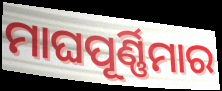
ମାଘପୂର୍ଣ୍ଣିମାର